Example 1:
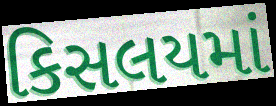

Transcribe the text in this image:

કિસલયમાં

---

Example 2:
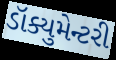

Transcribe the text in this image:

ડૉક્યુમેન્ટરી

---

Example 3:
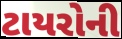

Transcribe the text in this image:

ટાયરોની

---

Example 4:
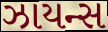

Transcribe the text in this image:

ઝાયન્સ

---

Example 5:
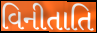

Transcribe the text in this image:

વિનીતાતિ